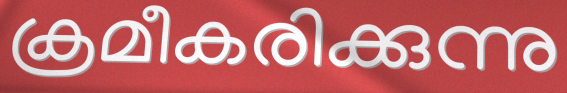
ക്രമീകരിക്കുന്നു